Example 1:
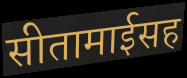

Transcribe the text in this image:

सीतामाईसह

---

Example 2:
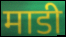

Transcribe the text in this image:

माडी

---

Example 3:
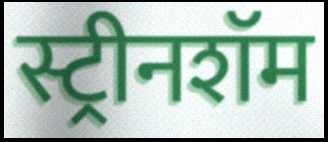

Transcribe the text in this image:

स्ट्रीनशॅम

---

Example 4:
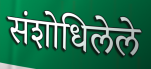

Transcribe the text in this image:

संशोधिलेले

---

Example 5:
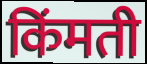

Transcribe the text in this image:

किंमती